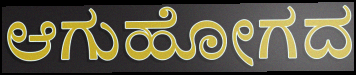
ಆಗುಹೋಗದ